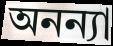
অনন্যা